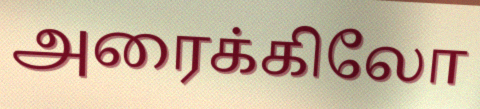
அரைக்கிலோ